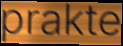
prakte